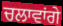
ਚਲਾਵਾਂਗੇ